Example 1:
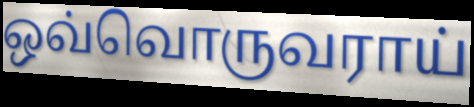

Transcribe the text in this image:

ஒவ்வொருவராய்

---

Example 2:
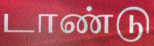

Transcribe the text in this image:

டாண்டு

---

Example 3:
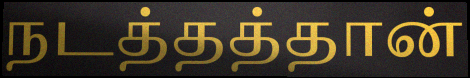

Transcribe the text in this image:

நடத்தத்தான்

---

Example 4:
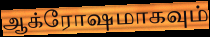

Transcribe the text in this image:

ஆக்ரோஷமாகவும்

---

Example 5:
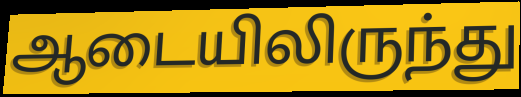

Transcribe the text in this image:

ஆடையிலிருந்து